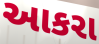
આકરા